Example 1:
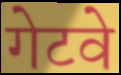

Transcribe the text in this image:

गेटवे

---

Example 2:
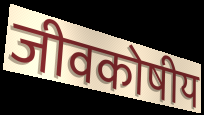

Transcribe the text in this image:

जीवकोषीय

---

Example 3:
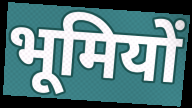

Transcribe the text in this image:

भूमियों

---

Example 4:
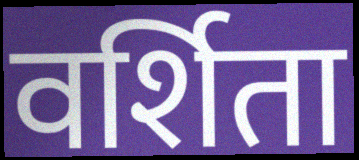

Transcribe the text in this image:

वर्शिता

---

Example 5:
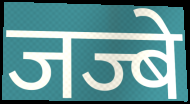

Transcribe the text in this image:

जज्बे